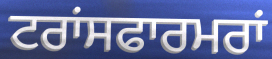
ਟਰਾਂਸਫਾਰਮਰਾਂ